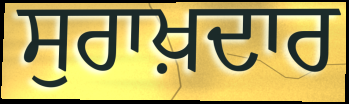
ਸੁਰਾਖ਼ਦਾਰ